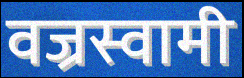
वज्रस्वामी